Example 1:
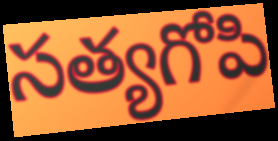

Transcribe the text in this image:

సత్యగోపి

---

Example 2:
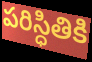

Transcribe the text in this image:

పరిస్ధితికి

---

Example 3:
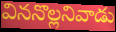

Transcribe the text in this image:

విననొల్లనివాడు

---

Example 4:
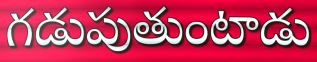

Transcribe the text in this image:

గడుపుతుంటాడు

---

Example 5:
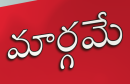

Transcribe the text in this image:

మార్గమే